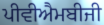
ਪੀਵੀਐਮਬੀਜੀ